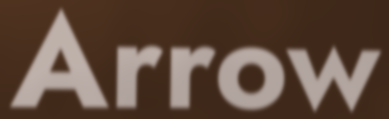
Arrow